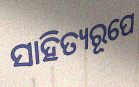
ସାହିତ୍ୟରୂପେ